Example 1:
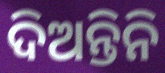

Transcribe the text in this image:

ଦିଅନ୍ତିନି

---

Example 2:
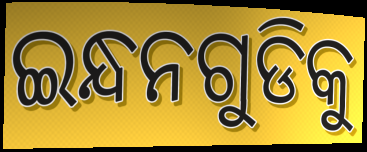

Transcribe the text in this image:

ଇନ୍ଧନଗୁଡିକୁ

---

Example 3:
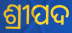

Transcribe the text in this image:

ଶ୍ରୀପଦ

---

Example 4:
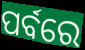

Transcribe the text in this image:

ପର୍ବରେ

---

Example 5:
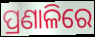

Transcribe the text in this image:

ପ୍ରଣାଳିରେ